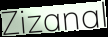
Zizanal